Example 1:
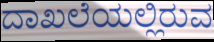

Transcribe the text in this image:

ದಾಖಲೆಯಲ್ಲಿರುವ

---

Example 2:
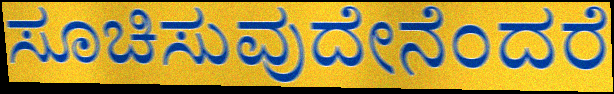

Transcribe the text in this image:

ಸೂಚಿಸುವುದೇನೆಂದರೆ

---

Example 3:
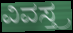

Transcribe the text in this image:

ವಿವಸ್ತ್ರ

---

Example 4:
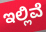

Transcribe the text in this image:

ಇಲ್ಲಿವೆ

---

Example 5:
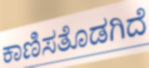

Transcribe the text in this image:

ಕಾಣಿಸತೊಡಗಿದೆ